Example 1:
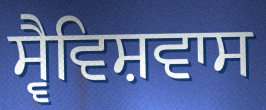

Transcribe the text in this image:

ਸ੍ਵੈਵਿਸ਼ਵਾਸ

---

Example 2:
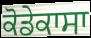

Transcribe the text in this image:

ਕੋਡੇਕਾਸਾ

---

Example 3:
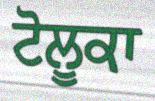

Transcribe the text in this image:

ਟੋਲੂਕਾ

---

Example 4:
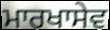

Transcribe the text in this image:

ਮਾਰਖਾਸੇਵ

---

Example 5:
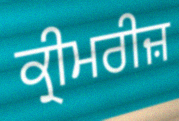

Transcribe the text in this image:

ਕ੍ਰੀਮਰੀਜ਼